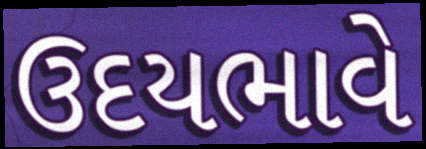
ઉદયભાવે